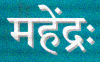
महेंद्रः